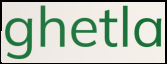
ghetla